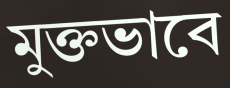
মুক্তভাবে